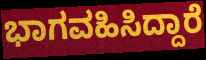
ಭಾಗವಹಿಸಿದ್ದಾರೆ